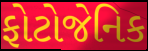
ફોટોજેનિક